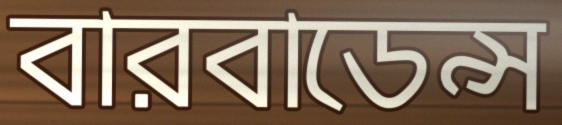
বারবাডেন্স